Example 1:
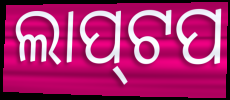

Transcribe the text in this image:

ଲାପ୍‌ଟପ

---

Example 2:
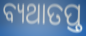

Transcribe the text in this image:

ବ୍ୟଥାତପ୍ତ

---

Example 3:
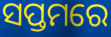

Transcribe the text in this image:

ସପ୍ତମରେ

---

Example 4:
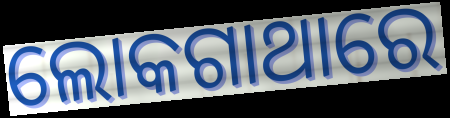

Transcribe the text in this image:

ଲୋକଗାଥାରେ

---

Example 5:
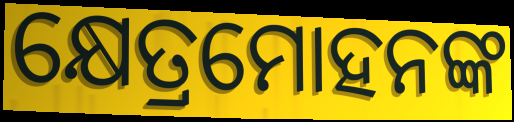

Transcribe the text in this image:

କ୍ଷେତ୍ରମୋହନଙ୍କ